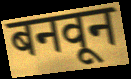
बनवून